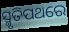
ସ୍ମୃତିପଥରେ